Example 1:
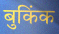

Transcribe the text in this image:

बुकिंक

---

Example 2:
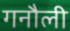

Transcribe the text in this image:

गनौली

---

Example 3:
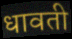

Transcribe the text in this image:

धावती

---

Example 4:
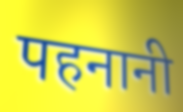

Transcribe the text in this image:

पहनानी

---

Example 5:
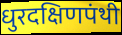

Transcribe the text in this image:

धुरदक्षिणपंथी